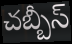
చబ్బీస్